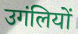
उगंलियों